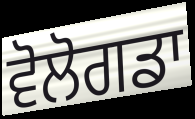
ਵੋਲੋਗਡਾ